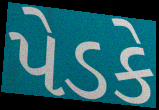
પેડકે